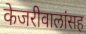
केजरीवालांसह